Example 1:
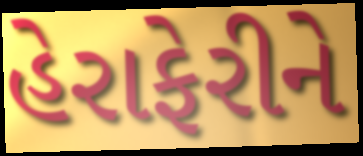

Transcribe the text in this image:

હેરાફેરીને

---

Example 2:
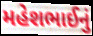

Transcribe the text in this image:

મહેશભાઈનું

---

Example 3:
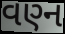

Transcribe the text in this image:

વણ્ન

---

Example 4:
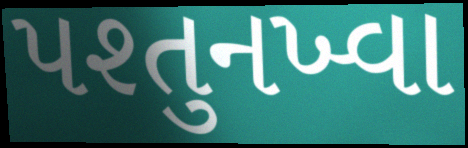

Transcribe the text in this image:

પશ્તુનખ્વા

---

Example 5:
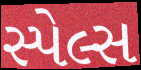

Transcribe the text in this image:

સ્પેલ્સ